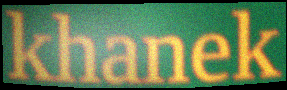
khanek